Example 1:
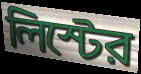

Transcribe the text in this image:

লিস্টের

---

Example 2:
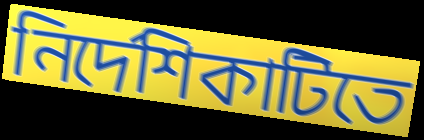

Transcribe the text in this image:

নির্দেশিকাটিতে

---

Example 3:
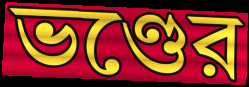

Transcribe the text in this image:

ভণ্ডের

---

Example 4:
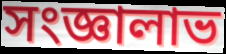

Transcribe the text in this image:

সংজ্ঞালাভ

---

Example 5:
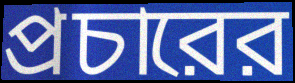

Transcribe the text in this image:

প্রচারের